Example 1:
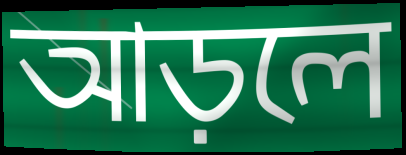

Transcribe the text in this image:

আড়লে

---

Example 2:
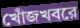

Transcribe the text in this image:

খোঁজখবরে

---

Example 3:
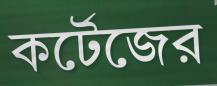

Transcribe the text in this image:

কর্টেজের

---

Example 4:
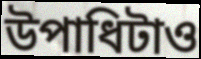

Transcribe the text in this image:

উপাধিটাও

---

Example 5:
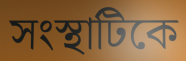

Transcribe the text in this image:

সংস্থাটিকে